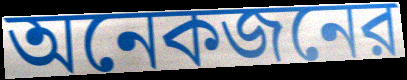
অনেকজনের